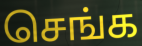
செங்க